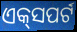
ଏକ୍‌ସପର୍ଟ